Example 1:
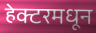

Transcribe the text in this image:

हेक्टरमधून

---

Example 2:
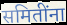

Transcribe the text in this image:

समितींना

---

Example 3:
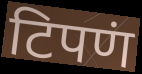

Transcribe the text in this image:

टिपणं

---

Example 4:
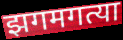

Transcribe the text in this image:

झगमगत्या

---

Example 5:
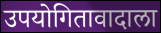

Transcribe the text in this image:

उपयोगितावादाला